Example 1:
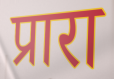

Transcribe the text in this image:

प्रारा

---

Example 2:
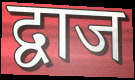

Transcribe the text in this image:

द्वाज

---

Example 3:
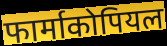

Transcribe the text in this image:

फार्माकोपियल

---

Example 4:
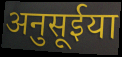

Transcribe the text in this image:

अनुसूईया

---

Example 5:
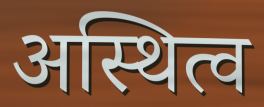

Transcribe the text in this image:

अस्थित्व